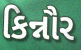
કિન્નૌર